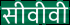
सीवीवी